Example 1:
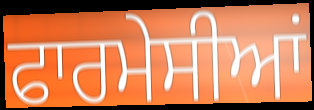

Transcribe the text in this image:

ਫਾਰਮੇਸੀਆਂ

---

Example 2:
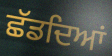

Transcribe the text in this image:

ਛੱਡਦਿਆਂ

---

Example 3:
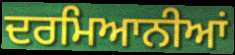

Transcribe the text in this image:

ਦਰਮਿਆਨੀਆਂ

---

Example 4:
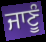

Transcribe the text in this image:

ਜਾਣੂੰ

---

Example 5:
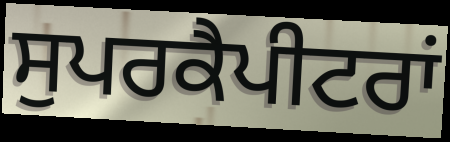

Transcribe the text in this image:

ਸੁਪਰਕੈਪੀਟਰਾਂ